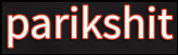
parikshit